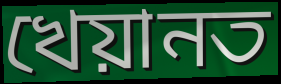
খেয়ানত